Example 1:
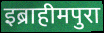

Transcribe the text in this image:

इब्राहीमपुरा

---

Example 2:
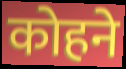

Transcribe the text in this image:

कोहने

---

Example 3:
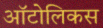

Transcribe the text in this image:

ऑटोलिकस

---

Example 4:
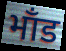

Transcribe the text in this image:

भाँड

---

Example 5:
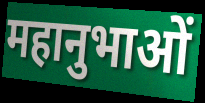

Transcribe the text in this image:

महानुभाओं